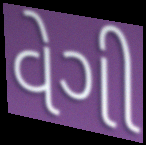
વેગી